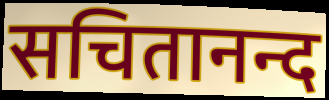
सचितानन्द